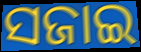
ସଜାଇ